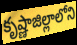
కృష్ణాజిల్లాలోని